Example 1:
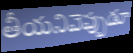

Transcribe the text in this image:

తీయనివెప్పుడూ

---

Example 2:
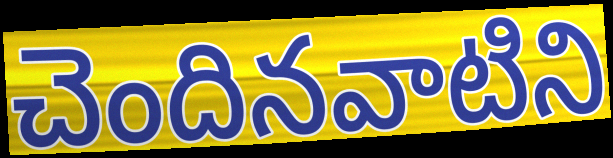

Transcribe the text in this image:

చెందినవాటిని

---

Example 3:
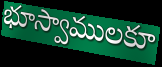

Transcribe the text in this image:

భూస్వాములకూ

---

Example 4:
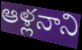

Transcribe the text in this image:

ఆళ్లనాని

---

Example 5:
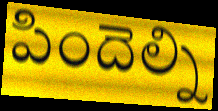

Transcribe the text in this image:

పిందెల్ని